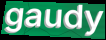
gaudy